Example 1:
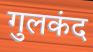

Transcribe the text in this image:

गुलकंद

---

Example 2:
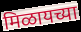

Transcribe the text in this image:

मिळायच्या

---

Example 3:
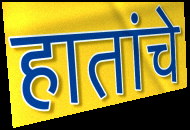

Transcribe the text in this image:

हातांचे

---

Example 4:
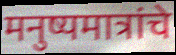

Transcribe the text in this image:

मनुष्यमात्रांचे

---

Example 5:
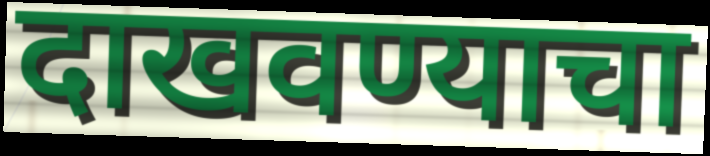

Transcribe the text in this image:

दाखवण्याचा